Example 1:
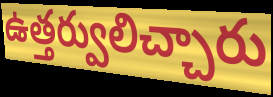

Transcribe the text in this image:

ఉత్తర్వులిచ్చారు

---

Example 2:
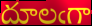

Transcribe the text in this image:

దూలఁగా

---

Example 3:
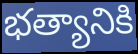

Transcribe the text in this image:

భత్యానికి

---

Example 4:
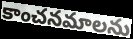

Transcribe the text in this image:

కాంచనమాలను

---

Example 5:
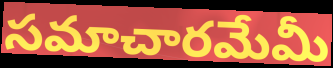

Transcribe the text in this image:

సమాచారమేమీ